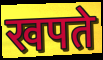
खपते